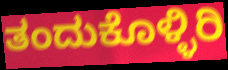
ತಂದುಕೊಳ್ಳಿರಿ